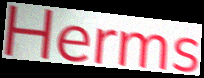
Herms